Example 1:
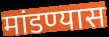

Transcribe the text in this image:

मांडण्यास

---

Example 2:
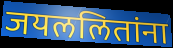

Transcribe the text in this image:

जयललितांना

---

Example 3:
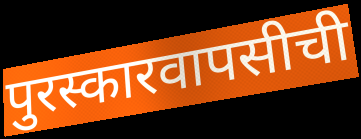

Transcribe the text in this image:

पुरस्कारवापसीची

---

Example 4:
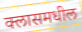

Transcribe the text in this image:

क्लासमधील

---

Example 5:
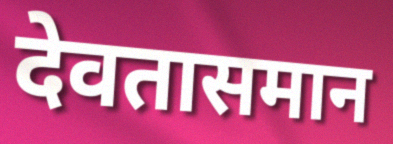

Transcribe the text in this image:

देवतासमान